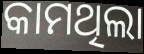
କାମଥିଲା